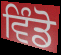
ਵਿੰਡੋ